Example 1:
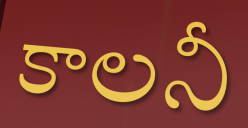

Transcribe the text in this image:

కాలనీ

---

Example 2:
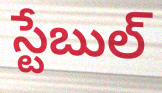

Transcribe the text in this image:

స్టేబుల్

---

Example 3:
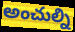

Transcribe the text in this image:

అంచుల్ని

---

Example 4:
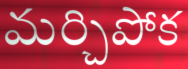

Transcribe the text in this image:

మర్చిపోక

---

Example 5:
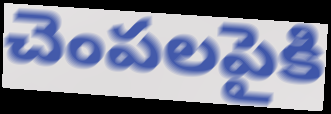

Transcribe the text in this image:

చెంపలపైకి